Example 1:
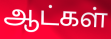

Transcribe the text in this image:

ஆட்கள்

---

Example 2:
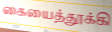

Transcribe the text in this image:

கையைத்தூக்கி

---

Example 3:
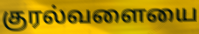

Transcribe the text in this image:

குரல்வளையை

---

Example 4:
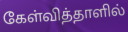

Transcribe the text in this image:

கேள்வித்தாளில்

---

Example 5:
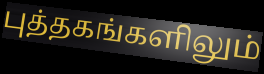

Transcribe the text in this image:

புத்தகங்களிலும்